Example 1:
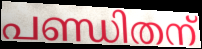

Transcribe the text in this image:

പണ്ഡിതന്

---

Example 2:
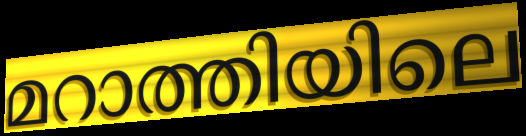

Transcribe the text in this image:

മറാത്തിയിലെ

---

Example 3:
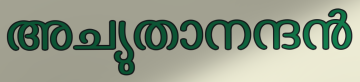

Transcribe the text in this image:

അച്യുതാനന്ദൻ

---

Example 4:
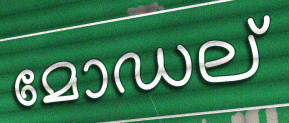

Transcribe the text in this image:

മോഡല്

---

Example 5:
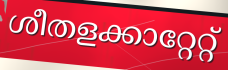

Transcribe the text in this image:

ശീതളക്കാറ്റേറ്റ്